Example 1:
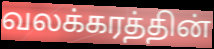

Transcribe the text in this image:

வலக்கரத்தின்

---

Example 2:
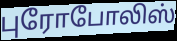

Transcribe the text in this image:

புரோபோலிஸ்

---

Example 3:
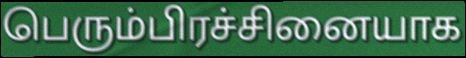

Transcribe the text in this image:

பெரும்பிரச்சினையாக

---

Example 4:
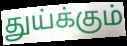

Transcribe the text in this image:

துய்க்கும்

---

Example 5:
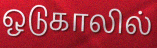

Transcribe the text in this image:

ஒடுகாலில்